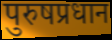
पुरुषप्रधान